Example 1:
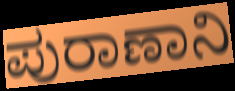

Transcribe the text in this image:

ಪುರಾಣಾನಿ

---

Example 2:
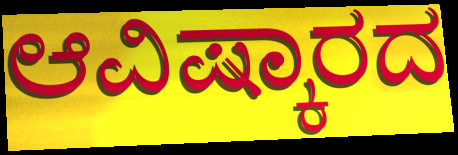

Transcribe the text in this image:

ಆವಿಷ್ಕಾರದ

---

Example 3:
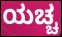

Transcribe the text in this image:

ಯಚ್ಚ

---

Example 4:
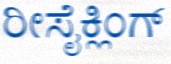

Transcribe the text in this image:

ರೀಸೈಕ್ಲಿಂಗ್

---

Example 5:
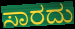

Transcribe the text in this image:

ಸಾರದು